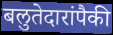
बलुतेदारांपैकी